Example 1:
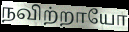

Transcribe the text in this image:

நவிற்றாயோ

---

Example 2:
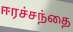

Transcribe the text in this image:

ஈரச்சந்தை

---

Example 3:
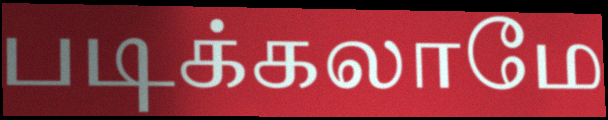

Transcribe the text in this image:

படிக்கலாமே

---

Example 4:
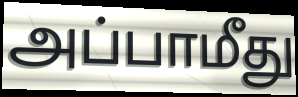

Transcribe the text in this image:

அப்பாமீது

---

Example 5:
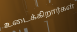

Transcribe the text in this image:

உடைக்கிறார்கள்